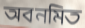
অবনমিত